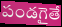
పండగైతే